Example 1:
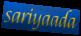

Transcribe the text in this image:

sariyaada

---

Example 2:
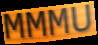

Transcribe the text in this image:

MMMU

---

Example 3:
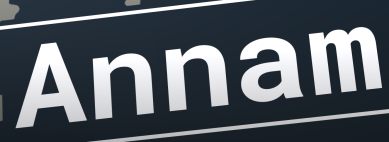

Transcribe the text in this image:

Annam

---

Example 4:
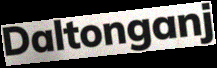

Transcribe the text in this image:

Daltonganj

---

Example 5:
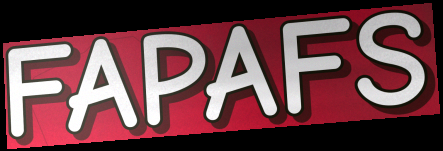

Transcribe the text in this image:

FAPAFS